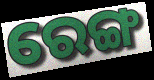
ରେଙ୍ଗ